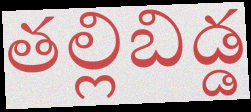
తల్లిబిడ్డ